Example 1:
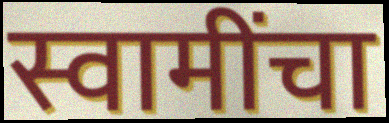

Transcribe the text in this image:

स्वामींचा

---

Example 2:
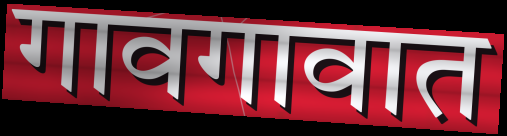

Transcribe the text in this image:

गावगावात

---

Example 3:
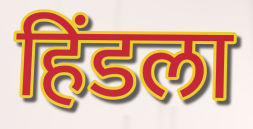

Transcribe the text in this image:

हिंडला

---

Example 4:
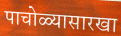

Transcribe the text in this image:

पाचोळ्यासारखा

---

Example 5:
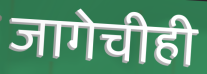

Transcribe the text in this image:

जागेचीही